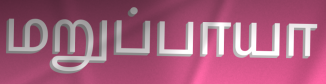
மறுப்பாயா